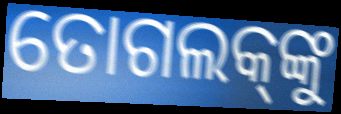
ତୋଗଲକ୍‌ଙ୍କୁ